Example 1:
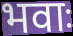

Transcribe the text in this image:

भवाः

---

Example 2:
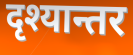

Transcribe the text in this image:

दृश्यान्तर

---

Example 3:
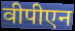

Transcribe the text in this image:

वीपीएन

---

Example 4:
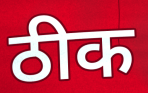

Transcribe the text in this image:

ठीक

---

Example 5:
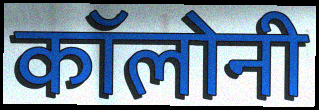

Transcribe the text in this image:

कॉलोनी